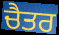
ਚੈਤਰ